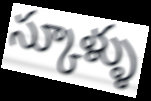
స్కూళ్ళు